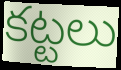
కట్టలు